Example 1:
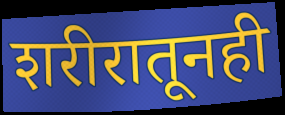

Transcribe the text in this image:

शरीरातूनही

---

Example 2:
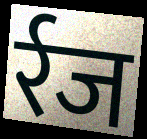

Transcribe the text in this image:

र्रज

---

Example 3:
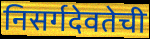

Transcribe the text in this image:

निसर्गदेवतेची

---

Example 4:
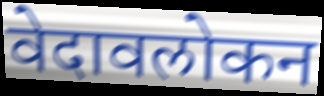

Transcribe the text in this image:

वेदावलोकन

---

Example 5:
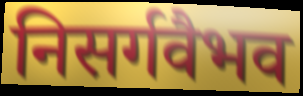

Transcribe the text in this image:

निसर्गवैभव